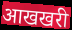
आखखरी